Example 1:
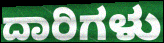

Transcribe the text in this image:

ದಾರಿಗಳು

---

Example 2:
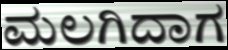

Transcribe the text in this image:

ಮಲಗಿದಾಗ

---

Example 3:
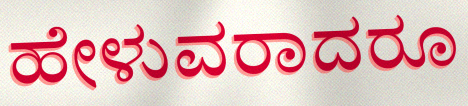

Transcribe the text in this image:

ಹೇಳುವರಾದರೂ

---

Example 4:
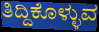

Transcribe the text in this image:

ತಿದ್ದಿಕೊಳ್ಳುವ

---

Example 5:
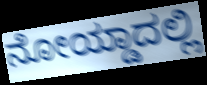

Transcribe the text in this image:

ನೋಯ್ಡಾದಲ್ಲಿ